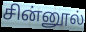
சின்னூல்